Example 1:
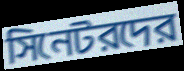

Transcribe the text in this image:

সিনেটরদের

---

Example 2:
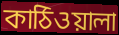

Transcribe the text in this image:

কাঠিওয়ালা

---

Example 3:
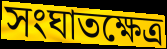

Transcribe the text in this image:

সংঘাতক্ষেত্র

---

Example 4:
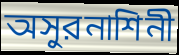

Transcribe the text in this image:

অসুরনাশিনী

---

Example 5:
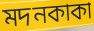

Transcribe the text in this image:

মদনকাকা